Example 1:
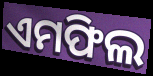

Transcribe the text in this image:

ଏମଫିଲ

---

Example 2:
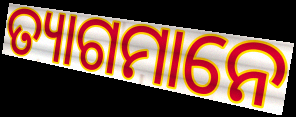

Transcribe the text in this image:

ତ୍ୟାଗମାନେ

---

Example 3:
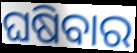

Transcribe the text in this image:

ଘଷିବାର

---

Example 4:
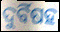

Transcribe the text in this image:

ଦୁର୍ବିଷହ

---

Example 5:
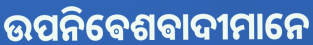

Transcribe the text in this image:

ଉପନିଵେଶଵାଦୀମାନେ